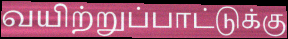
வயிற்றுப்பாட்டுக்கு